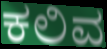
ಕಲಿವ